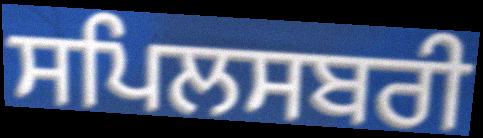
ਸਪਿਲਸਬਰੀ